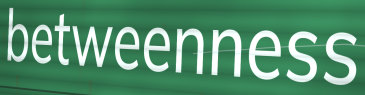
betweenness